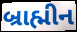
બ્રાહ્મીન